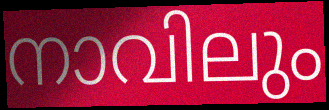
നാവിലും